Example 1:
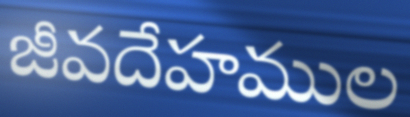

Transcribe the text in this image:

జీవదేహముల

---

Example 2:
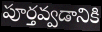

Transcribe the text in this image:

పూర్తవ్వడానికి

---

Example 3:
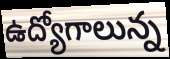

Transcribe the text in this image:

ఉద్యోగాలున్న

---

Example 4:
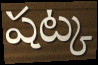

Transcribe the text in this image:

షట్క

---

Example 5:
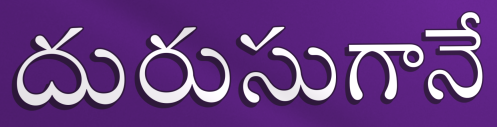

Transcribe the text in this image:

దురుసుగానే